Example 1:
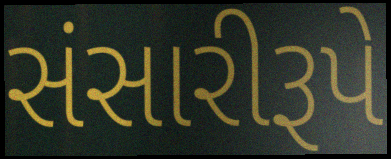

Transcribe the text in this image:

સંસારીરૂપે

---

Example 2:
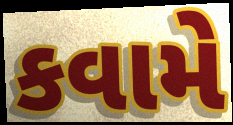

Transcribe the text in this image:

કવામે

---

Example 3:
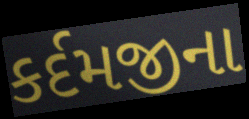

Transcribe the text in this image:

કર્દમજીના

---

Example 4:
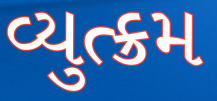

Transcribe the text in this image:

વ્યુત્ક્રમ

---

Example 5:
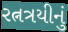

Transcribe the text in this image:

રત્નત્રયીનું